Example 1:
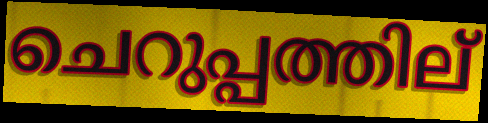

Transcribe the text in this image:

ചെറുപ്പത്തില്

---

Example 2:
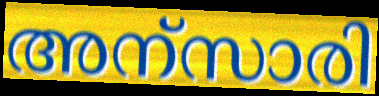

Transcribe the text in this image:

അന്സാരി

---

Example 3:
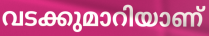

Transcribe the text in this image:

വടക്കുമാറിയാണ്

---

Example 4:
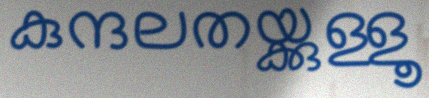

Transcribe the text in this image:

കുന്ദലതയ്ക്കുള്ളൂ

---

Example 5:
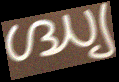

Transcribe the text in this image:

ഗ്ദ്ധ്യ